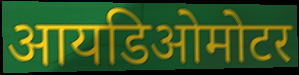
आयडिओमोटर